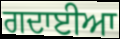
ਗਦਾਈਆ